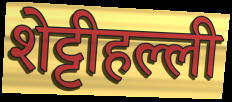
शेट्टीहल्ली